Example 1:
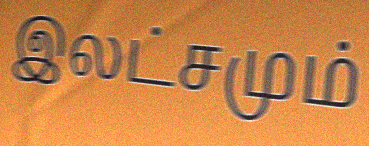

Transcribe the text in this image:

இலட்சமும்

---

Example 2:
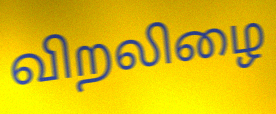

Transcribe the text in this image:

விறலிழை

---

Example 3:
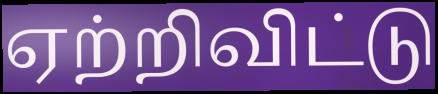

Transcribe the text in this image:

ஏற்றிவிட்டு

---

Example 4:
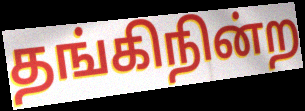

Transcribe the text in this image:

தங்கிநின்ற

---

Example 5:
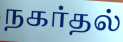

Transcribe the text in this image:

நகர்தல்